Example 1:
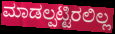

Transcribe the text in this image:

ಮಾಡಲ್ಪಟ್ಟಿರಲಿಲ್ಲ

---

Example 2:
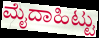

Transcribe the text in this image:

ಮೈದಾಹಿಟ್ಟು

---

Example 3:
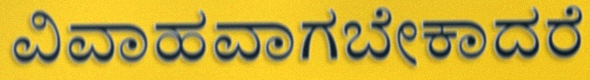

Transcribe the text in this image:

ವಿವಾಹವಾಗಬೇಕಾದರೆ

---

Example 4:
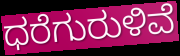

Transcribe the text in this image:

ಧರೆಗುರುಳಿವೆ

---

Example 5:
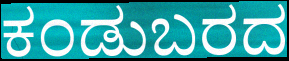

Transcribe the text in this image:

ಕಂಡುಬರದ